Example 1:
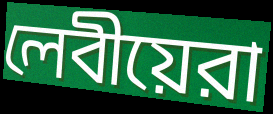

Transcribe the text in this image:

লেবীয়েরা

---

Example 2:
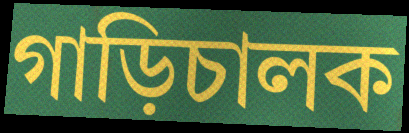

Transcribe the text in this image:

গাড়িচালক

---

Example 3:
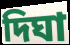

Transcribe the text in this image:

দিঘা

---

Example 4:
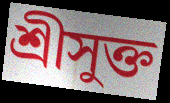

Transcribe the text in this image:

শ্রীসুক্ত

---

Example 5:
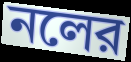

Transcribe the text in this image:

নলের